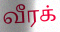
வீரக்